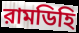
রামডিহি